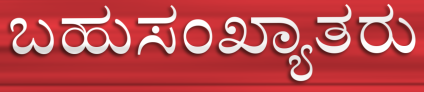
ಬಹುಸಂಖ್ಯಾತರು